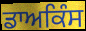
ਡਾਅਕਿੰਸ